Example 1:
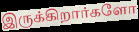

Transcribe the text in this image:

இருக்கிறார்களோ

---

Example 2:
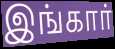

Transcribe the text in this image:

இங்கார்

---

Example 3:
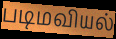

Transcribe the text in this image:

படிமவியல்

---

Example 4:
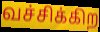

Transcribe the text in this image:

வச்சிக்கிற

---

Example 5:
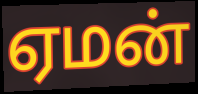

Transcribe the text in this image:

ஏமன்